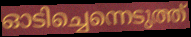
ഓടിച്ചെന്നെടുത്ത്